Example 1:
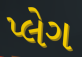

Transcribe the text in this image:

પ્લેગ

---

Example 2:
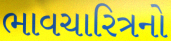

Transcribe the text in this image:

ભાવચારિત્રનો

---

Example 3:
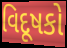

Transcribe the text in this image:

વિદૂષકો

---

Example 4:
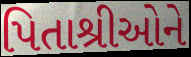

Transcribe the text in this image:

પિતાશ્રીઓને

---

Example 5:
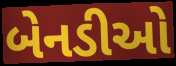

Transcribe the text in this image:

બેનડીઓ